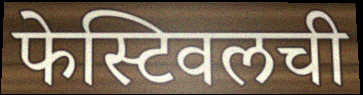
फेस्टिवलची